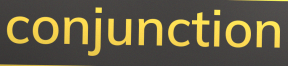
conjunction